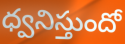
ధ్వనిస్తుందో